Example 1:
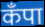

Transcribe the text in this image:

कँपा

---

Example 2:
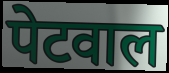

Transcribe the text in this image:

पेटवाल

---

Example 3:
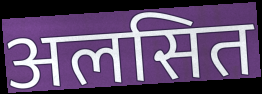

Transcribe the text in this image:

अलसित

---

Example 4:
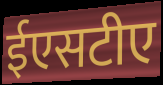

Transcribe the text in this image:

ईएसटीए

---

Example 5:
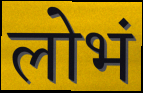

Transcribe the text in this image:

लोभं